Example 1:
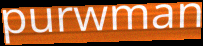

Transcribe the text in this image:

purwman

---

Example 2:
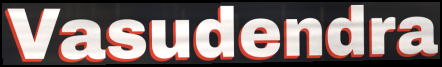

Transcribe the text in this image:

Vasudendra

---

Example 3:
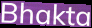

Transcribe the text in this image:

Bhakta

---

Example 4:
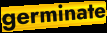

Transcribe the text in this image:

germinate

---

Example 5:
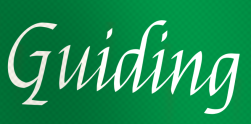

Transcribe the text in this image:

Guiding